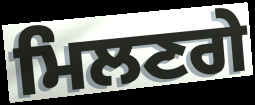
ਮਿਲਣਗੇ